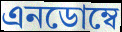
এনডোম্বে